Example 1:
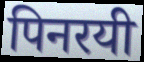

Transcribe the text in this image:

पिनरयी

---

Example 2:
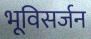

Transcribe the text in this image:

भूविसर्जन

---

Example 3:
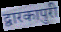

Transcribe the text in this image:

द्वारकापुरी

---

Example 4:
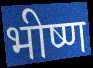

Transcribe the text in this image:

भीष्ण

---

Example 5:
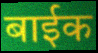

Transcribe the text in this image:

बाईक